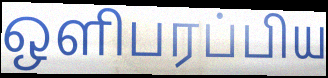
ஒளிபரப்பிய